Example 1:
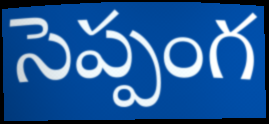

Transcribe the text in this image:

సెప్పంగ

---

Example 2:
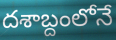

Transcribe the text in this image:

దశాబ్దంలోనే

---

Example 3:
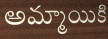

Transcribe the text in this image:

అమ్మాయికి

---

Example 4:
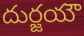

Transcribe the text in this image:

దుర్జయౌ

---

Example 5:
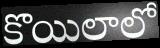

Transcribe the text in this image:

కొయిలాలో